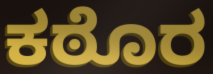
ಕಠೊರ